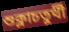
শুক্লাচতুৰ্থী